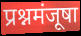
प्रश्नमंजूषा